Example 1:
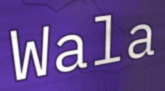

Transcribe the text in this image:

Wala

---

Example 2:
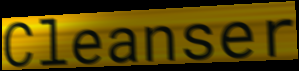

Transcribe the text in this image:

Cleanser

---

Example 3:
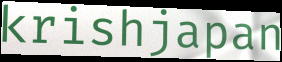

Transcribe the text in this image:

krishjapan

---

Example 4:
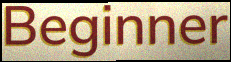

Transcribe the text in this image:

Beginner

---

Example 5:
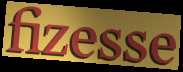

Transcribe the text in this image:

fizesse